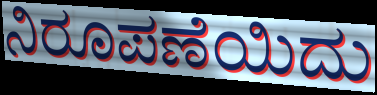
ನಿರೂಪಣೆಯಿದು